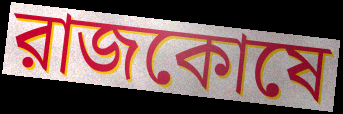
রাজকোষে